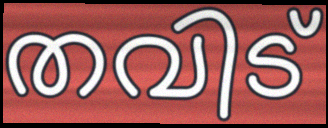
തവിട്